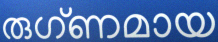
രുഗ്ണമായ